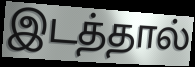
இடத்தால்